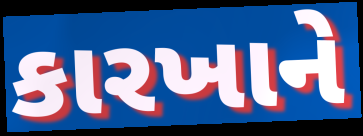
કારખાને